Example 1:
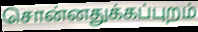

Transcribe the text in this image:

சொன்னதுக்கப்புறம்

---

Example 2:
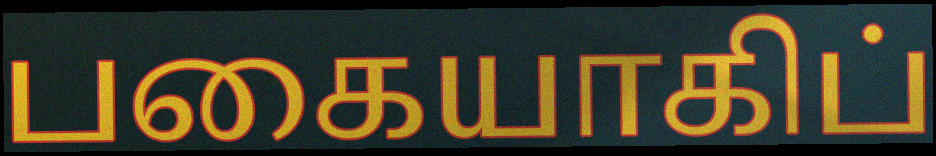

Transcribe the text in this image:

பகையாகிப்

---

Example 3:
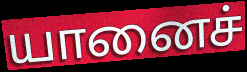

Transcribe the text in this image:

யானைச்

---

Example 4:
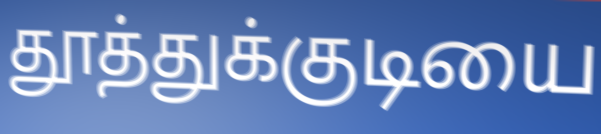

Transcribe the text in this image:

தூத்துக்குடியை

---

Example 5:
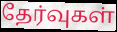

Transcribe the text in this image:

தேர்வுகள்